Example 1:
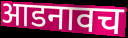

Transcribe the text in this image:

आडनावच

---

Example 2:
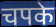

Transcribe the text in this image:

चपके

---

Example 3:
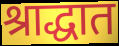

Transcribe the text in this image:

श्राद्धात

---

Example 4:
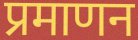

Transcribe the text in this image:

प्रमाणन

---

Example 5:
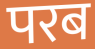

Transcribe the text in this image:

परब